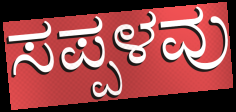
ಸಪ್ಪಳವು